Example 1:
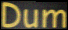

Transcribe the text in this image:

Dum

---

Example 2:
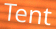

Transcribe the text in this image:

Tent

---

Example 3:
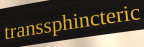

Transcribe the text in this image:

transsphincteric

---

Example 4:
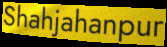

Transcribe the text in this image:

Shahjahanpur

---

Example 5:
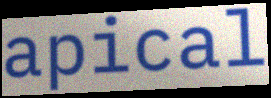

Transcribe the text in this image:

apical